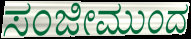
ಸಂಜೀಮುಂದ